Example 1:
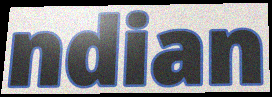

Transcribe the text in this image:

ndian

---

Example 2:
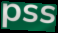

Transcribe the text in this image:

pss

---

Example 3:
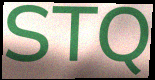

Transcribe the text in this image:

STQ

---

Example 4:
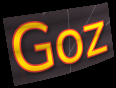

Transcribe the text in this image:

Goz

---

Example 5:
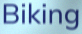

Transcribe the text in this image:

Biking